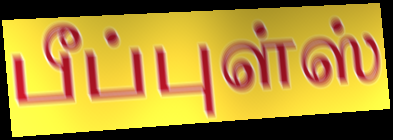
பீப்புள்ஸ்